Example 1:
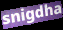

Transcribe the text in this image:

snigdha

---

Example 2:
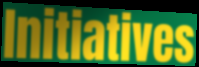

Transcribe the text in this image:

Initiatives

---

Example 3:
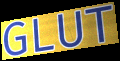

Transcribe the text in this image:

GLUT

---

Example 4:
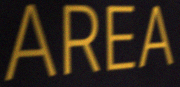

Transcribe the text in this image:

AREA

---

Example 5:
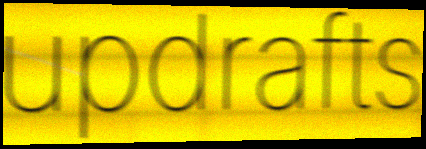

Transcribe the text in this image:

updrafts